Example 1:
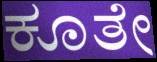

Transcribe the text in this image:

ಕೂತೇ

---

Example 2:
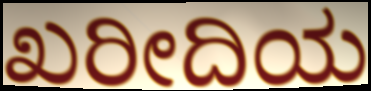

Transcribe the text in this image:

ಖರೀದಿಯ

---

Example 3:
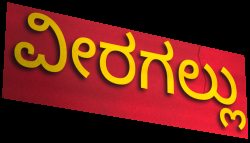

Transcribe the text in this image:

ವೀರಗಲ್ಲು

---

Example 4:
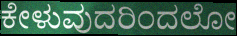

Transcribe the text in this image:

ಕೇಳುವುದರಿಂದಲೋ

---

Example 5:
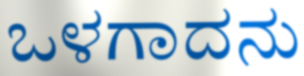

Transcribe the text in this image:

ಒಳಗಾದನು